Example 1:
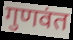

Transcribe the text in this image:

गुणवंत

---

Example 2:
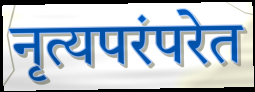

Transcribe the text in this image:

नृत्यपरंपरेत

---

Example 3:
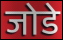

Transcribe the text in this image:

जोडे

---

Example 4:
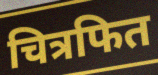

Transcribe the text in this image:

चित्रफित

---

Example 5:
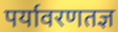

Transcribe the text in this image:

पर्यावरणतज्ञ